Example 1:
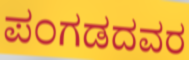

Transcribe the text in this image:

ಪಂಗಡದವರ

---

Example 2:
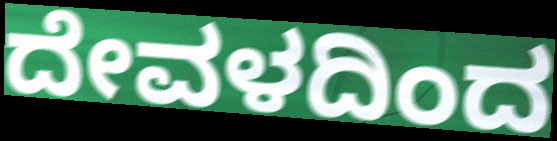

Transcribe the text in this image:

ದೇವಳದಿಂದ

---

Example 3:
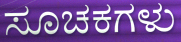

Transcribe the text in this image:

ಸೂಚಕಗಳು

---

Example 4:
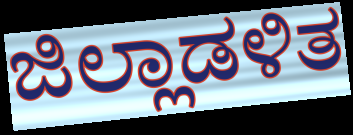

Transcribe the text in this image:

ಜಿಲ್ಲಾಡಳಿತ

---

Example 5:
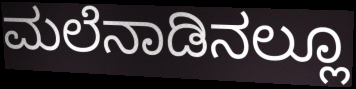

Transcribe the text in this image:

ಮಲೆನಾಡಿನಲ್ಲೂ